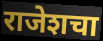
राजेशचा